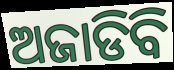
ଅଜାଡିବି